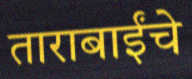
ताराबाईंचे